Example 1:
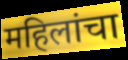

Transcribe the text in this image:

महिलांचा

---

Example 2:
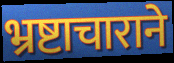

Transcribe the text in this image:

भ्रष्टाचाराने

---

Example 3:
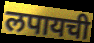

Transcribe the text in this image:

लपायची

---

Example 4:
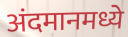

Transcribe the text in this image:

अंदमानमध्ये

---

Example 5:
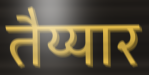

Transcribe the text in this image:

तैय्यार